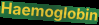
Haemoglobin